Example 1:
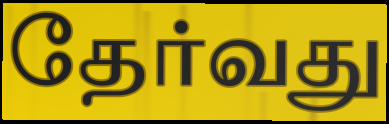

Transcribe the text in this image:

தேர்வது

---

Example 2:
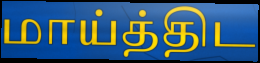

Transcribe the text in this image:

மாய்த்திட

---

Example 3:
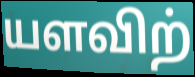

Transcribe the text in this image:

யளவிற்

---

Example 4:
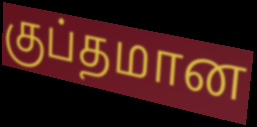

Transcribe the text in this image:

குப்தமான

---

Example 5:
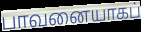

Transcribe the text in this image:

பாவனையாகப்